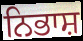
ਨਿਭਾਸ਼